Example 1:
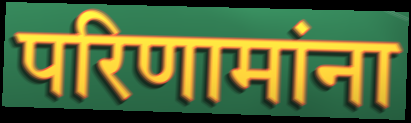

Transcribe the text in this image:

परिणामांना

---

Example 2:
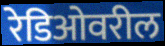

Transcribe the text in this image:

रेडिओवरील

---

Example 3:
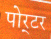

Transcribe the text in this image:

पोर्टर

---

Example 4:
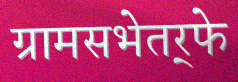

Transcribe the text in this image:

ग्रामसभेतर्फे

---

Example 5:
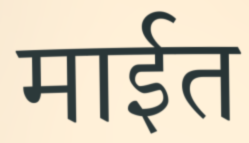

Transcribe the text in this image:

माईत